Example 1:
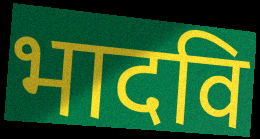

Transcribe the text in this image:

भादवि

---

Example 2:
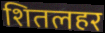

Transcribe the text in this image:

शितलहर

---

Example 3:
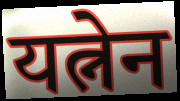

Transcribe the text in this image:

यत्नेन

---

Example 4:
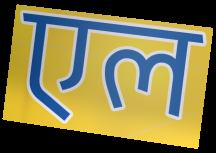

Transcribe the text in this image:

एल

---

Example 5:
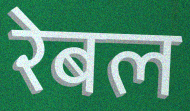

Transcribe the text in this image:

रेबल